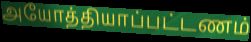
அயோத்தியாப்பட்டணம்